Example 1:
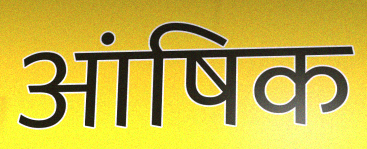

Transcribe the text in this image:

आंषिक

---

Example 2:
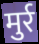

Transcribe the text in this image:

मुर्र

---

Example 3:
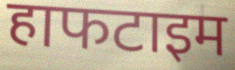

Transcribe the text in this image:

हाफटाइम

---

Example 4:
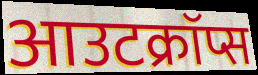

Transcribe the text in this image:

आउटक्रॉप्स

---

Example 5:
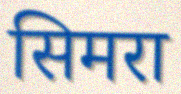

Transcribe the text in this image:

सिमरा